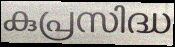
കുപ്രസിദ്ധ